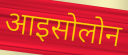
आइसोलोन